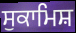
ਸੁਕਾਮਿਸ਼